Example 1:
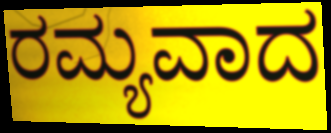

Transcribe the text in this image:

ರಮ್ಯವಾದ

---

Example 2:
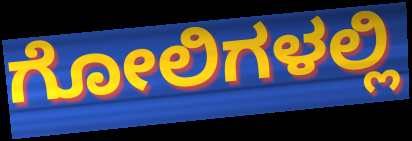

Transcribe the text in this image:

ಗೋಲಿಗಳಲ್ಲಿ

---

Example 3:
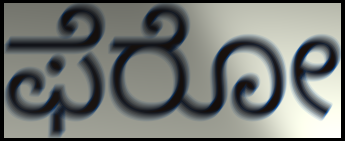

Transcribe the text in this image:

ಫೆರೋ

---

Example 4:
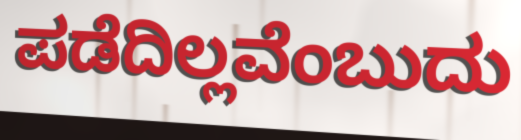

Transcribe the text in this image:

ಪಡೆದಿಲ್ಲವೆಂಬುದು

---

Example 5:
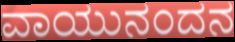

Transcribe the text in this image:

ವಾಯುನಂದನ